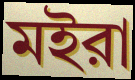
মইরা